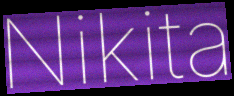
Nikita